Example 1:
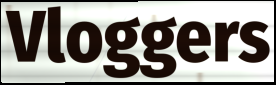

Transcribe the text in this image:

Vloggers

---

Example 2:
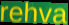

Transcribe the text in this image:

rehva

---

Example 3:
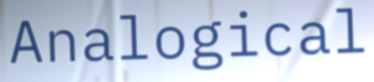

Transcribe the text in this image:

Analogical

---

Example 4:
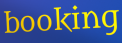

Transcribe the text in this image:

booking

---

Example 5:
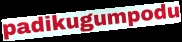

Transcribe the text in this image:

padikugumpodu